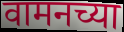
वामनच्या